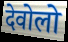
देवोलो